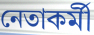
নেতাকর্মী